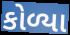
કોળ્યા